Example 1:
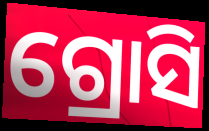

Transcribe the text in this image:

ଗ୍ରୋସି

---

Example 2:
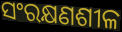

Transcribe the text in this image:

ସଂରକ୍ଷଣଶୀଳ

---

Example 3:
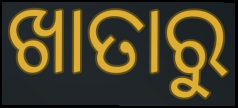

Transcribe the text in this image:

ଖାତାରୁ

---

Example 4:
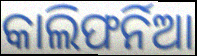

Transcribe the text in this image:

କାଲିଫର୍ନିଆ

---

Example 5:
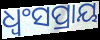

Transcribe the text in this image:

ଧ୍ୱଂସପ୍ରାୟ